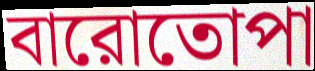
বারোতোপা